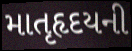
માતૃહૃદયની